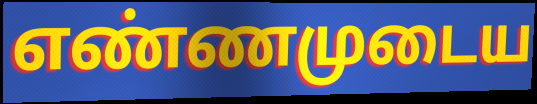
எண்ணமுடைய